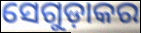
ସେଗୁଡ଼ାକର